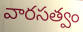
వారసత్వం